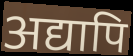
अद्यापि